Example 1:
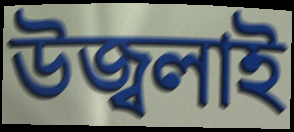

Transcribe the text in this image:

উজ্বলাই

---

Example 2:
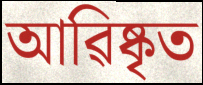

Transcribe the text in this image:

আৱিষ্কৃত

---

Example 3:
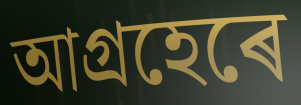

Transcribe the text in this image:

আগ্ৰহেৰে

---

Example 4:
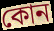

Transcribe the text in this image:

কোন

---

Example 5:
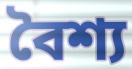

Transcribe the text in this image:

বৈশ্য